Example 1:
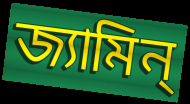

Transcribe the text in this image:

জ্যামিন্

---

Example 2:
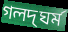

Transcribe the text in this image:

গলদ্‌ঘর্ম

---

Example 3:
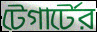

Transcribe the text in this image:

টেগার্টের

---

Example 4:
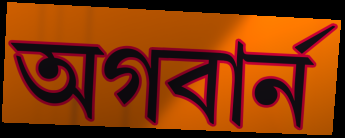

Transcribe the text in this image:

অগবার্ন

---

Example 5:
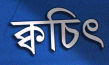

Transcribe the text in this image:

ক্বচিৎ